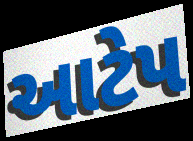
આટેપ